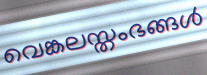
വെങ്കലസ്തംഭങ്ങൾ